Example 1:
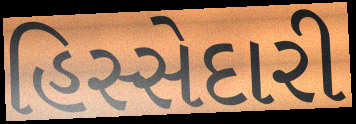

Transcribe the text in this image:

હિસ્સેદારી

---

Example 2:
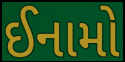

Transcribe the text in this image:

ઈનામો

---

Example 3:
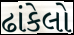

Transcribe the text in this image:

ઢાંકેલો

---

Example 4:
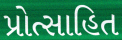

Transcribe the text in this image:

પ્રોત્સાહિત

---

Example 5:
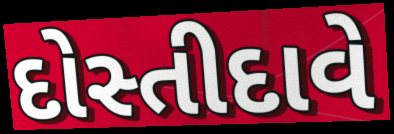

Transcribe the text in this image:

દોસ્તીદાવે